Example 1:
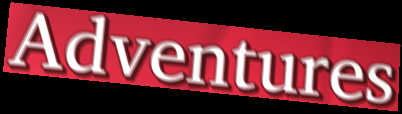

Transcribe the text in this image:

Adventures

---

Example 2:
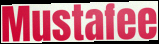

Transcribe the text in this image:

Mustafee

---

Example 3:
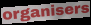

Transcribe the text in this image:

organisers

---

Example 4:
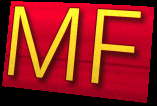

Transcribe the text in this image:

MF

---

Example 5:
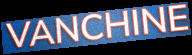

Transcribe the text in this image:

VANCHINE